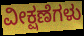
ವೀಕ್ಷಣೆಗಳು